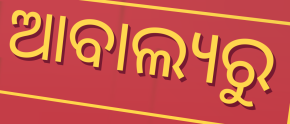
ଆବାଲ୍ୟରୁ